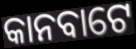
କାନବାଟେ